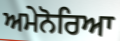
ਅਮੇਨੋਰਿਆ